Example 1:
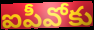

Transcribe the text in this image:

ఐపీవోకు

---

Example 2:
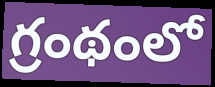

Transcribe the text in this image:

గ్రంథంలో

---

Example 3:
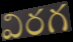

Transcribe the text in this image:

విరగ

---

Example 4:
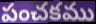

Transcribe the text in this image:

పంచకము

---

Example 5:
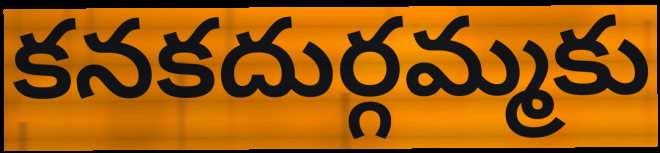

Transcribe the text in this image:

కనకదుర్గమ్మకు